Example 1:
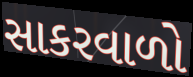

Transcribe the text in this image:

સાકરવાળો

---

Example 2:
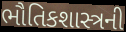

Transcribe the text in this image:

ભૌતિકશાસ્ત્રની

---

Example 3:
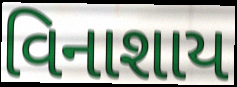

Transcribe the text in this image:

વિનાશાય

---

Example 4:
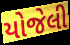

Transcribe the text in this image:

યોજેલી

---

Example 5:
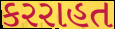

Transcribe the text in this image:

કરરાહત